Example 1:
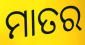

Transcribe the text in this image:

ମାତର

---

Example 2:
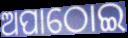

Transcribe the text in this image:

ଅପାଠୋଇ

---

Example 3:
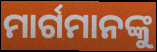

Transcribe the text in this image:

ମାର୍ଗମାନଙ୍କୁ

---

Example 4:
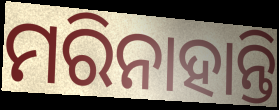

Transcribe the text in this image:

ମରିନାହାନ୍ତି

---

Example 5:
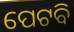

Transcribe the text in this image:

ପେଟବି